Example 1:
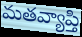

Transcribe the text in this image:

మతవ్యాప్తి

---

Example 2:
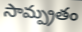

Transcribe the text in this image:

సామ్ప్రతం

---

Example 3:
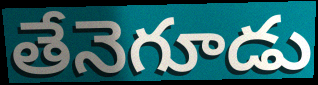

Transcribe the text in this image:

తేనెగూడు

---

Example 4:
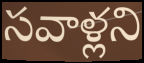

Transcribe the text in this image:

సవాళ్లని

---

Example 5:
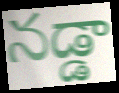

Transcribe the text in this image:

నడ్డా